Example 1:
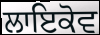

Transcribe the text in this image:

ਲਾਇਕੋਵ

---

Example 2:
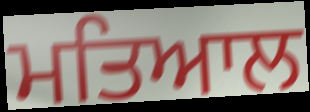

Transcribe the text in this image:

ਮਤਿਆਲ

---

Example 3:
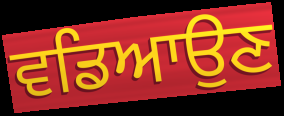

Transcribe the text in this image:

ਵਡਿਆਉਣ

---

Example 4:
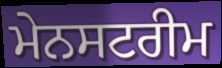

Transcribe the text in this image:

ਮੇਨਸਟਰੀਮ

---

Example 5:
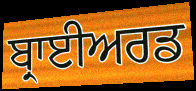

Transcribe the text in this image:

ਬ੍ਰਾਈਅਰਡ